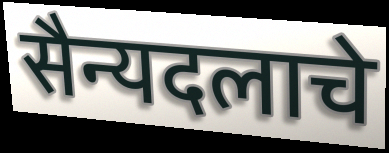
सैन्यदलाचे